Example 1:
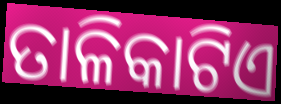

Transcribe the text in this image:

ତାଳିକାଟିଏ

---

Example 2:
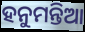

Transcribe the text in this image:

ହନୁମନ୍ତିଆ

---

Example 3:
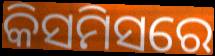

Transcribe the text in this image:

କିସମିସରେ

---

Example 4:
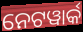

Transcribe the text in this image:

ନେଟୱାର୍କ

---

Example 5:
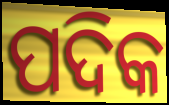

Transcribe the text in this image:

ପଦିକ